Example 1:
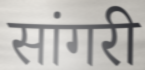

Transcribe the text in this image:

सांगरी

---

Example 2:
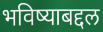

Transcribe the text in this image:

भविष्याबद्दल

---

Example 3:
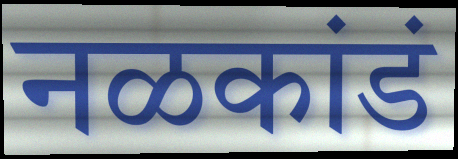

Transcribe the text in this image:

नळकांडं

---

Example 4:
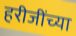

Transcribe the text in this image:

हरीजींच्या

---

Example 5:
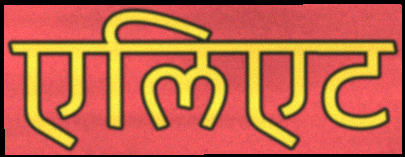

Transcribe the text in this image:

एलिएट